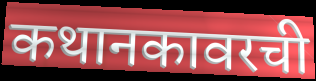
कथानकावरची